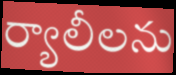
ర్యాలీలను